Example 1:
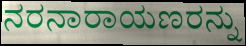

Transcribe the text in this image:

ನರನಾರಾಯಣರನ್ನು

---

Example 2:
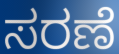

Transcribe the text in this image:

ಸರಣೆ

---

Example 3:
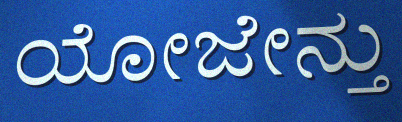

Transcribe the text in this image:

ಯೋಜೇನ್ತು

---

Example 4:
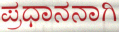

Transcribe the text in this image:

ಪ್ರಧಾನನಾಗಿ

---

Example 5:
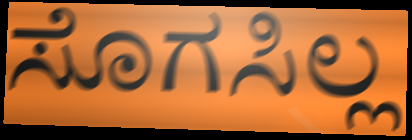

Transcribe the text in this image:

ಸೊಗಸಿಲ್ಲ